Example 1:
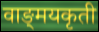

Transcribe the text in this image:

वाङ्‌मयकृती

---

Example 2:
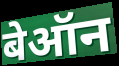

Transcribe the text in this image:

बेऑन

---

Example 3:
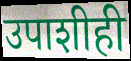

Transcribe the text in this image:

उपाशीही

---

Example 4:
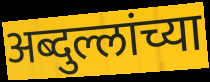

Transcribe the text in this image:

अब्दुल्लांच्या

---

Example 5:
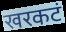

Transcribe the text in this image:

खरकटं